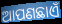
ଆପଣଛାଏଁ